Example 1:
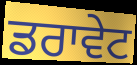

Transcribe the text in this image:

ਡਰਾਵੇਟ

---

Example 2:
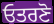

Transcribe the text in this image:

ਓਤਰਣੋ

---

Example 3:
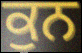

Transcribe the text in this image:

ਕੁਨ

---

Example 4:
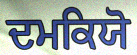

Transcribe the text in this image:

ਦਮਕਿਯੋ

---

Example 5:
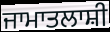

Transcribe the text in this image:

ਜਾਮਾਤਲਾਸ਼ੀ